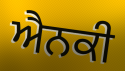
ਐਨਕੀ